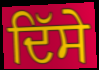
ਦਿੱਸੇ